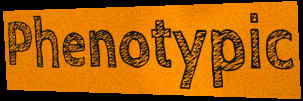
Phenotypic